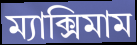
ম্যাক্সিমাম